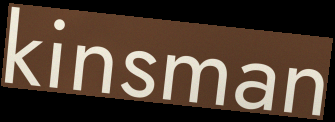
kinsman